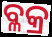
ବ୍ଳକ୍ର